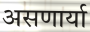
असणार्या